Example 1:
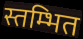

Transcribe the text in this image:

स्तम्भित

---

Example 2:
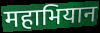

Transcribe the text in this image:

महाभियान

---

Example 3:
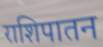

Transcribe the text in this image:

राशिपातन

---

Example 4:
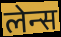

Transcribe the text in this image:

लेन्स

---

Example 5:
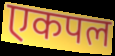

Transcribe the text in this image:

एकपल